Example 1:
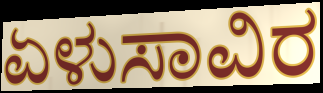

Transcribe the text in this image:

ಏಳುಸಾವಿರ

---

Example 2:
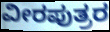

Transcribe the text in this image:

ವೀರಪುತ್ರರ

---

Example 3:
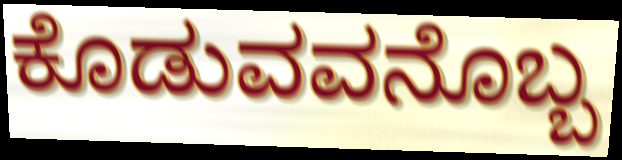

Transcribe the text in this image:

ಕೊಡುವವನೊಬ್ಬ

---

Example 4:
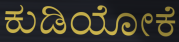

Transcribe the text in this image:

ಕುಡಿಯೋಕೆ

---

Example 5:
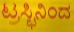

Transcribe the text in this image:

ಟ್ರಸ್ಟಿನಿಂದ